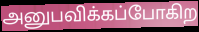
அனுபவிக்கப்போகிற